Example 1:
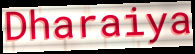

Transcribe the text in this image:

Dharaiya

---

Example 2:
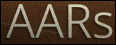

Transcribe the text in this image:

AARs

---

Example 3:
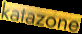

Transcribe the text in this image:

katazone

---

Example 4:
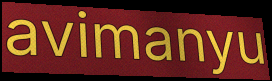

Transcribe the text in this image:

avimanyu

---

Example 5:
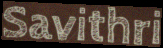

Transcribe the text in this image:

Savithri